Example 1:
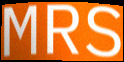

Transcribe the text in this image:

MRS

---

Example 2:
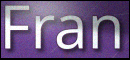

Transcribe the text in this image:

Fran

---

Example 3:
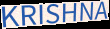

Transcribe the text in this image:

KRISHNA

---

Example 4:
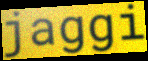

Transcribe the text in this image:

jaggi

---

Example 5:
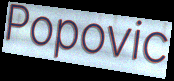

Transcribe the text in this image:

Popovic